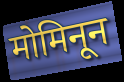
मोमिनून